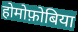
होमोफ़ोबिया